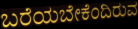
ಬರೆಯಬೇಕೆಂದಿರುವ